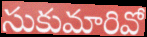
సుకుమారివో